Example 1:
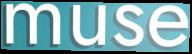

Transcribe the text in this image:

muse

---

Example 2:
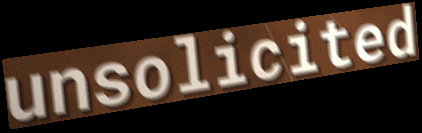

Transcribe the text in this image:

unsolicited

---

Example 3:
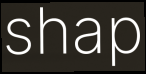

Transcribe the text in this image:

shap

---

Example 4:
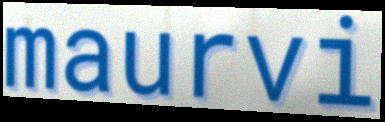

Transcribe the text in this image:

maurvi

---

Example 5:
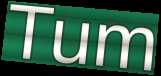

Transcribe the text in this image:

Tum